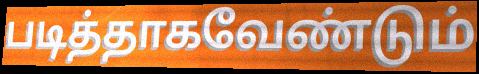
படித்தாகவேண்டும்